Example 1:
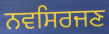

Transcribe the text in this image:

ਨਵਸਿਰਜਣ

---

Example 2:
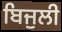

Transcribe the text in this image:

ਬਿਜੁਲੀ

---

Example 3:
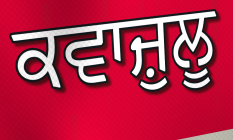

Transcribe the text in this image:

ਕਵਾਜ਼ੁਲੂ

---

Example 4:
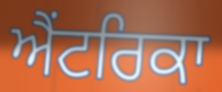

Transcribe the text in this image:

ਐਂਟਰਿਕਾ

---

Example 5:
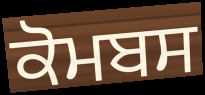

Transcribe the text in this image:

ਕੋਮਬਸ